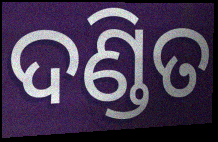
ଦଣ୍ଡିତ